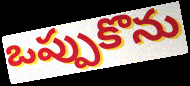
ఒప్పుకొను